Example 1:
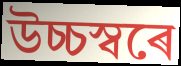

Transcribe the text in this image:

উচ্চস্বৰে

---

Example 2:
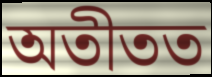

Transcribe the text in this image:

অতীতত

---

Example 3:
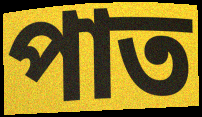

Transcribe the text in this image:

পাত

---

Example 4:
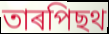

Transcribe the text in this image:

তাৰপিছথ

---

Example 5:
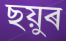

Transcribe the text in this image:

ছয়ুৰ